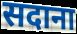
सदाना